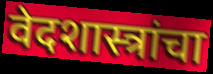
वेदशास्त्रांचा